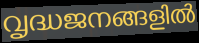
വൃദ്ധജനങ്ങളിൽ